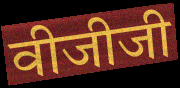
वीजीजी